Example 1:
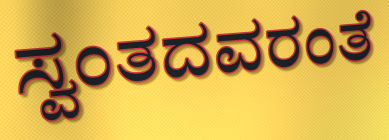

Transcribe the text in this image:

ಸ್ವಂತದವರಂತೆ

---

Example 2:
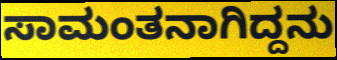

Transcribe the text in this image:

ಸಾಮಂತನಾಗಿದ್ದನು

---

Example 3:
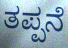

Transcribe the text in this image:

ತಪ್ಪನೆ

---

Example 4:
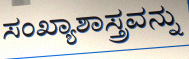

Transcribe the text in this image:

ಸಂಖ್ಯಾಶಾಸ್ತ್ರವನ್ನು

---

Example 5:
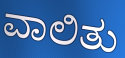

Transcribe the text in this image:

ವಾಲಿತು